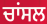
ਚਾਂਸਲ